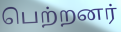
பெற்றனர்